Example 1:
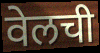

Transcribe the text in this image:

वेलची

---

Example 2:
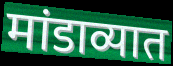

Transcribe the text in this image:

मांडाव्यात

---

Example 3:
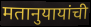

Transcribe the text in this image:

मतानुयायांची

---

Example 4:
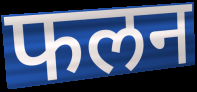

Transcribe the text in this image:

फलन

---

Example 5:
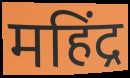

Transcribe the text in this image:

महिंद्र